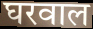
घरवाल